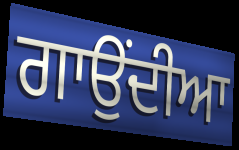
ਗਾਉਂਦੀਆ